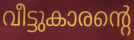
വീട്ടുകാരന്റെ